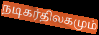
நடிகர்திலகமும்